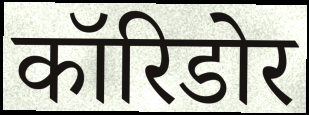
कॉरिडोर